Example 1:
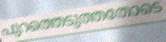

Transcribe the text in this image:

പുറത്തെടുത്തതോടെ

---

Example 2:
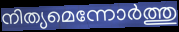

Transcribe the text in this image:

നിത്യമെന്നോർത്തു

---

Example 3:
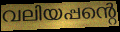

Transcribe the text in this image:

വലിയപ്പന്റെ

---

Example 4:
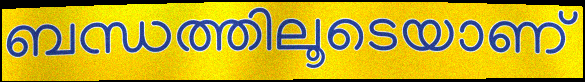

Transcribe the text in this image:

ബന്ധത്തിലൂടെയാണ്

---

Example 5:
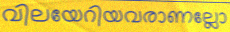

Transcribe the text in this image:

വിലയേറിയവരാണല്ലോ